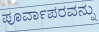
ಪೂರ್ವಾಪರವನ್ನು